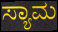
ಸ್ಯಾಮ